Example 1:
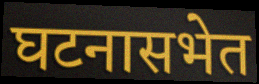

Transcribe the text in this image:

घटनासभेत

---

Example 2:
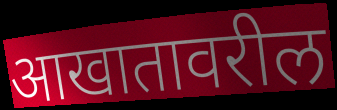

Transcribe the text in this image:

आखातावरील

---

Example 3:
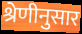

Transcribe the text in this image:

श्रेणीनुसार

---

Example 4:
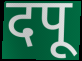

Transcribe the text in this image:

दपू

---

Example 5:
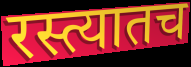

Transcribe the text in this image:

रस्त्यातच